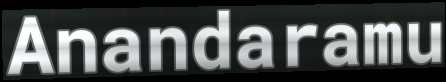
Anandaramu